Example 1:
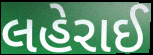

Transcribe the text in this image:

લહેરાઈ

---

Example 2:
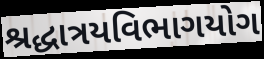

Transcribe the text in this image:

શ્રદ્ધાત્રયવિભાગયોગ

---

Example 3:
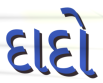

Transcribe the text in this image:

દાદો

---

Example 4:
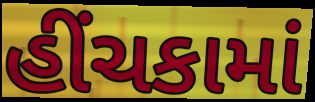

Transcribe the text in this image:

હીંચકામાં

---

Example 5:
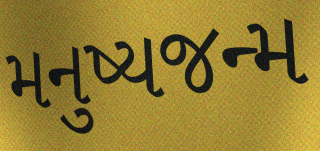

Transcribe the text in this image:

મનુષ્યજન્મ